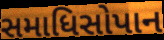
સમાધિસોપાન